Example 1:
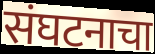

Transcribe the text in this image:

संघटनाचा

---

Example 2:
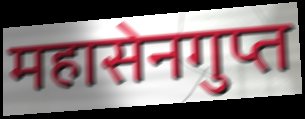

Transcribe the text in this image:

महासेनगुप्त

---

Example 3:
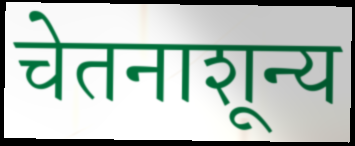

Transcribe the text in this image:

चेतनाशून्य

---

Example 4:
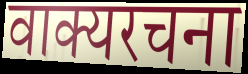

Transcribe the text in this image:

वाक्यरचना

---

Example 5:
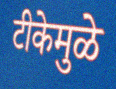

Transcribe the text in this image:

टीकेमुळे